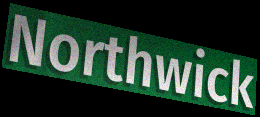
Northwick